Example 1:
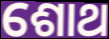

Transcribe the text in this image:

ଶୋଥ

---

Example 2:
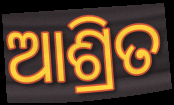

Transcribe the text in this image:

ଆଶ୍ରିତ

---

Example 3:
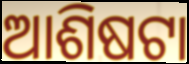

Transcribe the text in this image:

ଆଶିଷଟା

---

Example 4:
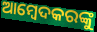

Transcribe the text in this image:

ଆମ୍ବେଦକରଙ୍କୁ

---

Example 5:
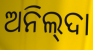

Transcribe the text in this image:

ଅନିଲ୍‌ଦା